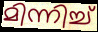
മിന്നിച്ച്